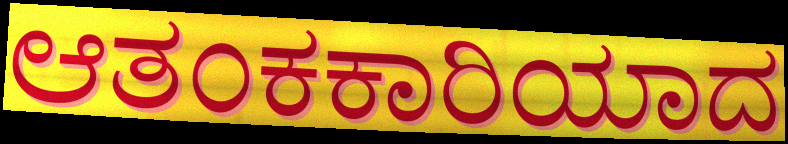
ಆತಂಕಕಾರಿಯಾದ